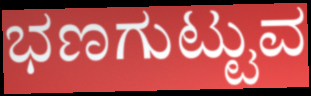
ಭಣಗುಟ್ಟುವ